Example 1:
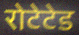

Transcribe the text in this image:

रोटेटेड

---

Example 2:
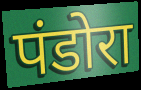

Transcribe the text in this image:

पंडोरा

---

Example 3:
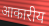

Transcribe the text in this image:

आकारीय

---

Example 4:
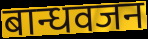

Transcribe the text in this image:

बान्धवजन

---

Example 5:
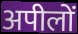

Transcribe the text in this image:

अपीलों